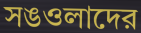
সঙওলাদের